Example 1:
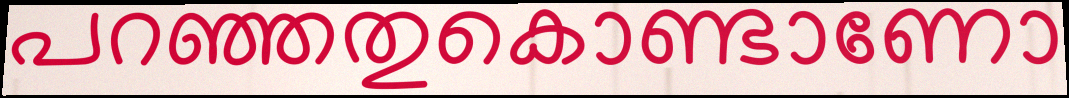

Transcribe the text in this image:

പറഞ്ഞതുകൊണ്ടാണോ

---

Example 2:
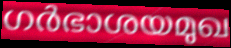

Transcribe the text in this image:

ഗർഭാശയമുഖ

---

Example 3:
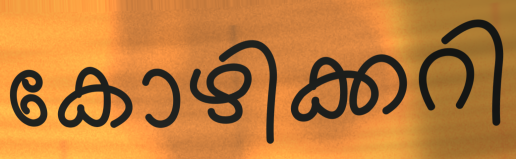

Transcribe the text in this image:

കോഴിക്കറി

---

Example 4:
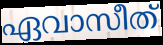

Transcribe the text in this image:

ഏവാസീത്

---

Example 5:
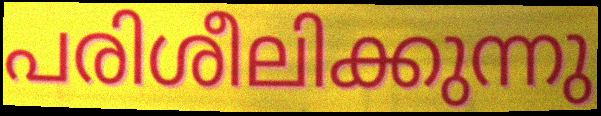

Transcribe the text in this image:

പരിശീലിക്കുന്നു